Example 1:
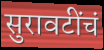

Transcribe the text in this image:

सुरावटींचं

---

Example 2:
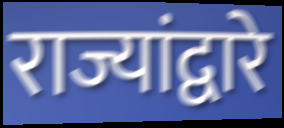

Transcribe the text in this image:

राज्यांद्वारे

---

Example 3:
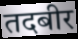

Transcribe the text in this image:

तदबीर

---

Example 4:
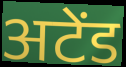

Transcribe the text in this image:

अटेंड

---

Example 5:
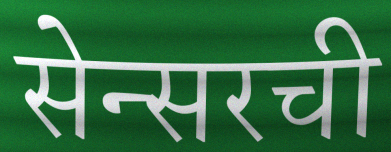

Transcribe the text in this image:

सेन्सरची